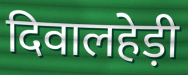
दिवालहेड़ी